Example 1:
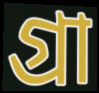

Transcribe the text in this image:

গ্ৰা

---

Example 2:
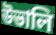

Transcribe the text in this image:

উভালি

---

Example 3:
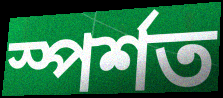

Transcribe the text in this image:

স্পৰ্শত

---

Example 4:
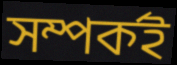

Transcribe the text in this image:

সম্পৰ্কই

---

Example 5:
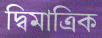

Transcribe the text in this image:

দ্বিমাত্ৰিক